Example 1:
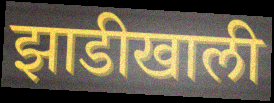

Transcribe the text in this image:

झाडीखाली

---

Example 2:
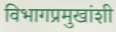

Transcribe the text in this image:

विभागप्रमुखांशी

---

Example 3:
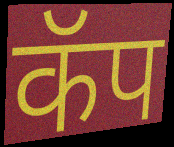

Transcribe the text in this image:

कॅप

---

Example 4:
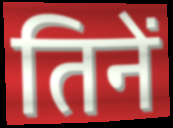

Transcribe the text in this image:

तिनें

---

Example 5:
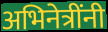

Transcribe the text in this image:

अभिनेत्रींनी